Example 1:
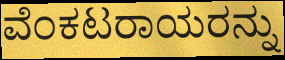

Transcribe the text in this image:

ವೆಂಕಟರಾಯರನ್ನು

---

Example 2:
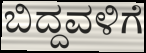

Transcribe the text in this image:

ಬಿದ್ದವಳಿಗೆ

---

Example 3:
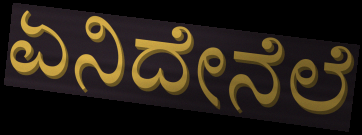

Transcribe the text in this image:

ಏನಿದೇನೆಲೆ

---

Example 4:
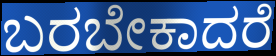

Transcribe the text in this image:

ಬರಬೇಕಾದರೆ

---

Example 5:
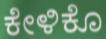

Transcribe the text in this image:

ಕೇಳಿಕೊ